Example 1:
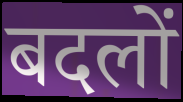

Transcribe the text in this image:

बदलों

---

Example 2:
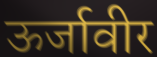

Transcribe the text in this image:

ऊर्जावीर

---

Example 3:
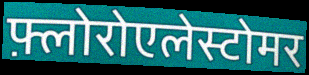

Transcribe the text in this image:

फ़्लोरोएलेस्टोमर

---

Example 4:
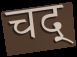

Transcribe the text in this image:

चद्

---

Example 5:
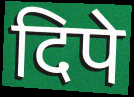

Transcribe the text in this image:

दिपे